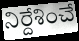
నిర్దేశించే